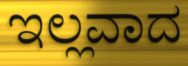
ಇಲ್ಲವಾದ